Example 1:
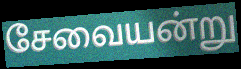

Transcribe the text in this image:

சேவையன்று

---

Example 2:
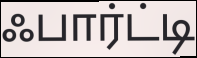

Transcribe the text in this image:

ஃபார்ட்டி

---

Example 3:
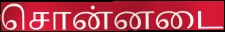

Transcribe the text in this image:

சொன்னடை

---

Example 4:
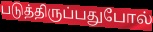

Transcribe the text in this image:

படுத்திருப்பதுபோல்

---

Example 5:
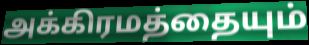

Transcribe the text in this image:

அக்கிரமத்தையும்